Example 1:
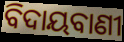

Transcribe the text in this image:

ବିଦାୟବାଣୀ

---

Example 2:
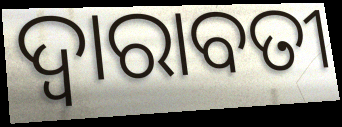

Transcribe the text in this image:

ଦ୍ଵାରାବତୀ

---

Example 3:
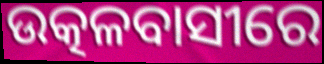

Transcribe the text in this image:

ଉତ୍କଳବାସୀରେ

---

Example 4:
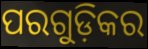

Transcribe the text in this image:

ପରଗୁଡ଼ିକର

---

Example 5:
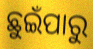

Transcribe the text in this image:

ଛୁଇଁପାରୁ